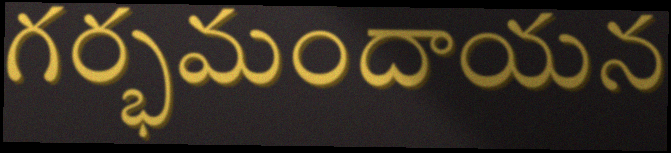
గర్భమందాయన